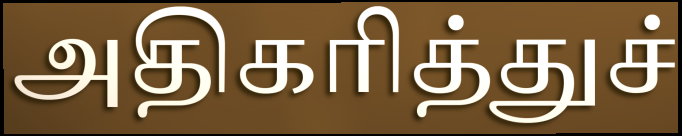
அதிகரித்துச்